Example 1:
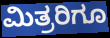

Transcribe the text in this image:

ಮಿತ್ರರಿಗೂ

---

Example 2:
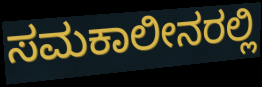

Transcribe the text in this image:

ಸಮಕಾಲೀನರಲ್ಲಿ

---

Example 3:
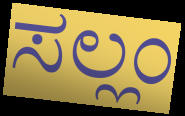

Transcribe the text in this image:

ಸಲ್ಲಂ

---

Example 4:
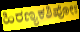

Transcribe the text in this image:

ಹಿರಣ್ಯಕಶಿಪೋಃ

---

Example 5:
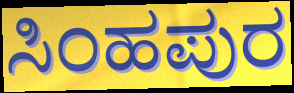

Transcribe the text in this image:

ಸಿಂಹಪುರ